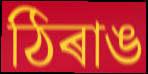
ঠিৰাঙ